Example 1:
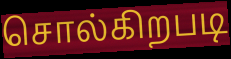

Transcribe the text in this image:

சொல்கிறபடி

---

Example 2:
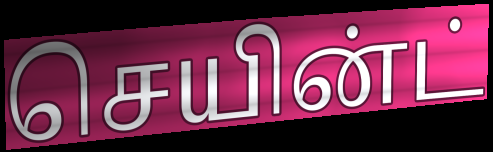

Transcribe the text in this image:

செயின்ட்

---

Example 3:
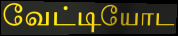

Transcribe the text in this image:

வேட்டியோட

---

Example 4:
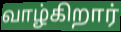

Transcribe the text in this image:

வாழ்கிறார்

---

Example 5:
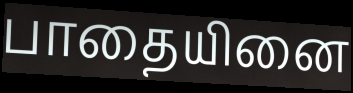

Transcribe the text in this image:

பாதையினை